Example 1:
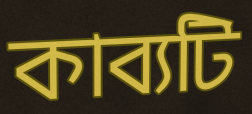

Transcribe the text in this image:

কাব্যটি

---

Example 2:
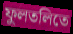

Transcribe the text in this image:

ফুলতলিতে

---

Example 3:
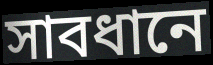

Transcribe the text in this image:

সাবধানে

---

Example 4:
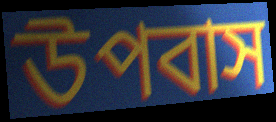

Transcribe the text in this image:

উপবাস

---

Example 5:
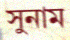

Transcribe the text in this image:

সুনাম